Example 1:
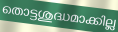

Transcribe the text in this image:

തൊട്ടശുദ്ധമാക്കില്ല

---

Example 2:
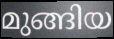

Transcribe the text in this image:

മുങ്ങിയ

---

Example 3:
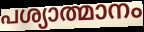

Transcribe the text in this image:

പശ്യാത്മാനം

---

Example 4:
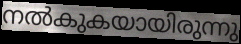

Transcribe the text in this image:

നൽകുകയായിരുന്നു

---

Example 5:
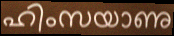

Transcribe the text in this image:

ഹിംസയാണു